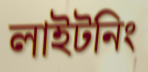
লাইটনিং